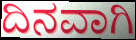
ದಿನವಾಗಿ